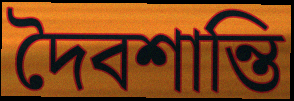
দৈবশান্তি